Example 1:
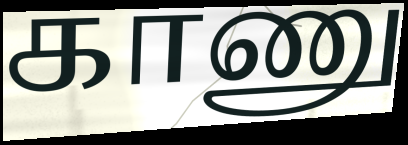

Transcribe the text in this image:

காணு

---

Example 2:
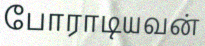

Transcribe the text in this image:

போராடியவன்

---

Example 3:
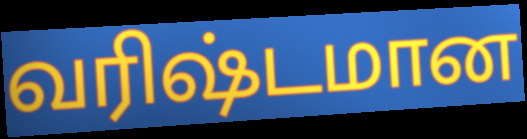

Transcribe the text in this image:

வரிஷ்டமான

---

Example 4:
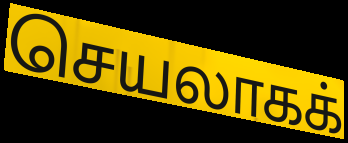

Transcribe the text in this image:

செயலாகக்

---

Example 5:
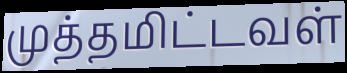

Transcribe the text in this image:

முத்தமிட்டவள்